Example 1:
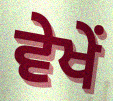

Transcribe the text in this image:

ਵੇਖੇਂ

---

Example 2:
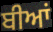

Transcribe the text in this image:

ਬੀਆਂ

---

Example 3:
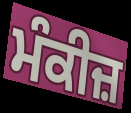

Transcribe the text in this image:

ਮੰਕੀਜ਼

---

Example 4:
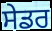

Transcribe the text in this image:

ਸੇਡਰ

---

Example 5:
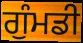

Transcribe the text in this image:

ਗੁੰਮਡੀ